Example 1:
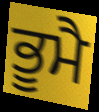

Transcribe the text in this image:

ਭੂਮੈ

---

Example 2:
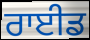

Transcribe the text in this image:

ਰਾਈਡ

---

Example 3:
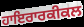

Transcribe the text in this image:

ਹਾਇਰਾਰਕੀਕਲ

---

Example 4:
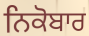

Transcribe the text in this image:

ਨਿਕੋਬਾਰ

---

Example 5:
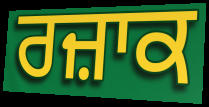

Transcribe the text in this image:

ਰਜ਼ਾਕ